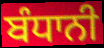
ਬੰਧਾਨੀ